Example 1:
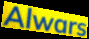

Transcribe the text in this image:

Alwars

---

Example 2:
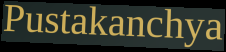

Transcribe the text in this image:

Pustakanchya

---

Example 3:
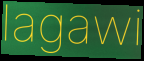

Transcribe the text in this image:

lagawi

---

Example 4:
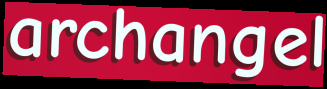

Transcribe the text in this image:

archangel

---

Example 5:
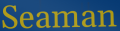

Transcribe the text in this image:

Seaman